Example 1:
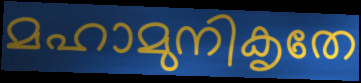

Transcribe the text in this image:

മഹാമുനികൃതേ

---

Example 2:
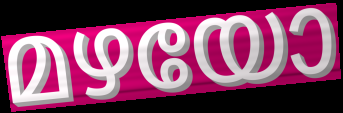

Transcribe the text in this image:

മഴയോ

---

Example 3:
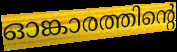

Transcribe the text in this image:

ഓങ്കാരത്തിന്റെ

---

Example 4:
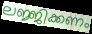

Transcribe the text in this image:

ലജ്ജിക്കണം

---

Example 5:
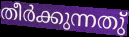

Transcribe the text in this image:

തീർക്കുന്നതു്